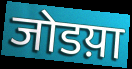
जोडय़ा